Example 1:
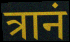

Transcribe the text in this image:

त्रानं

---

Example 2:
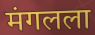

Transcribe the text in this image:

मंगलला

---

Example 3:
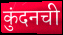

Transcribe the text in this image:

कुंदनची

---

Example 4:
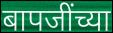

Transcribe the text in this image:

बापजींच्या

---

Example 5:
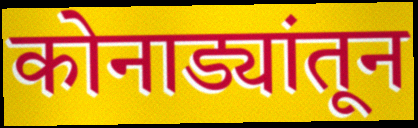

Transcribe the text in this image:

कोनाड्यांतून